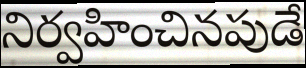
నిర్వహించినపుడే